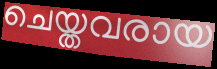
ചെയ്തവരായ